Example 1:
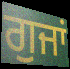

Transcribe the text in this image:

ਗੁਜਾਂ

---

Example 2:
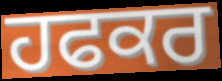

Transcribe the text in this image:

ਹਫਕਰ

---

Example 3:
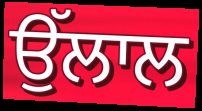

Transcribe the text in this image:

ਉੱਲਾਲ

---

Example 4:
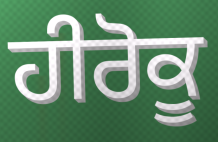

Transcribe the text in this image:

ਹੀਰੋਕੂ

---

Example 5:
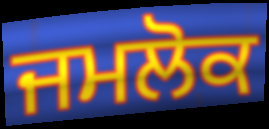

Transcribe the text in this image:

ਜਮਲੋਕ